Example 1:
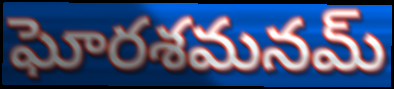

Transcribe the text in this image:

ఘోరశమనమ్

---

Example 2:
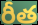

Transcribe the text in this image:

రీత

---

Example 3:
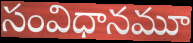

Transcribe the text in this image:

సంవిధానమూ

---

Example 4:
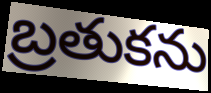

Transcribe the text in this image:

బ్రతుకను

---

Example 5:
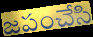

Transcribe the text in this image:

జపంచేసి